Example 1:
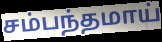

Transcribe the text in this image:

சம்பந்தமாய்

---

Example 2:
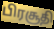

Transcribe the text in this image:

பிரசூதி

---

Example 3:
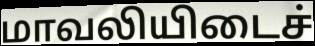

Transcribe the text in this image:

மாவலியிடைச்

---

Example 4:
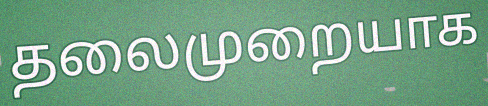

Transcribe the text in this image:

தலைமுறையாக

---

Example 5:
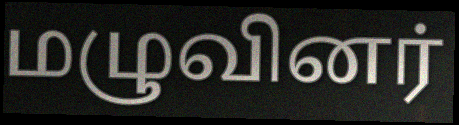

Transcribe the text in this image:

மழுவினர்